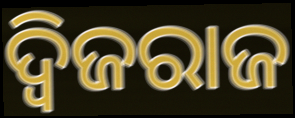
ଦ୍ୱିଜରାଜ